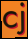
cj